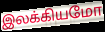
இலக்கியமோ